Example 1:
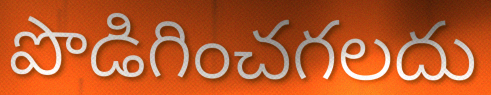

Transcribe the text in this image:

పొడిగించగలదు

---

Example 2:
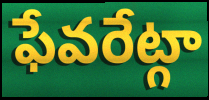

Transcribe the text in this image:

ఫేవరేట్గా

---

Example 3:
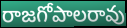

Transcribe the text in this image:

రాజగోపాలరావు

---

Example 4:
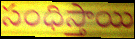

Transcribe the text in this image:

సంధిస్తాయి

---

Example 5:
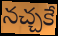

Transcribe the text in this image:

నచ్చకే